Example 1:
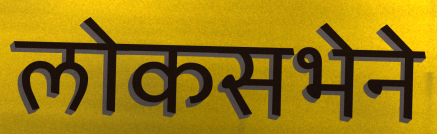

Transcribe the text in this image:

लोकसभेने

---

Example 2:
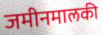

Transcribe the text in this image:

जमीनमालकी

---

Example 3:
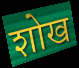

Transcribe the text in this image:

शोख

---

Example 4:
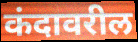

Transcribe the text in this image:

कंदावरील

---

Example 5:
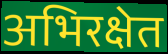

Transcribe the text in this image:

अभिरक्षेत